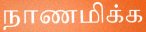
நாணமிக்க